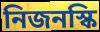
নিজনস্কি